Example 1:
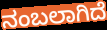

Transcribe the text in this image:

ನಂಬಲಾಗಿದೆ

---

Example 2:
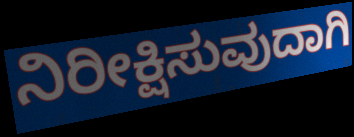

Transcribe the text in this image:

ನಿರೀಕ್ಷಿಸುವುದಾಗಿ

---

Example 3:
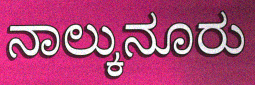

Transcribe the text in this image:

ನಾಲ್ಕುನೂರು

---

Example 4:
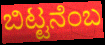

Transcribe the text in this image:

ಬಿಟ್ಟನೆಂಬ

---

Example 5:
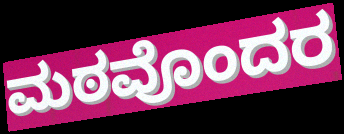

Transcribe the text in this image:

ಮಠವೊಂದರ